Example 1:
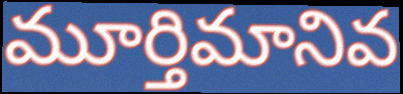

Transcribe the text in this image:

మూర్తిమానివ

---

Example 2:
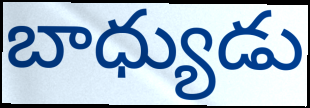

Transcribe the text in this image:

బాధ్యుడు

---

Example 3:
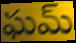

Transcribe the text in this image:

ఘమ్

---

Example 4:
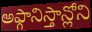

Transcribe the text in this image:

అఫ్గానిస్తాన్లోని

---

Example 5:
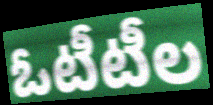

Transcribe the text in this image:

ఓటీటీల